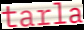
tarla